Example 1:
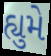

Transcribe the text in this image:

હ્યુમે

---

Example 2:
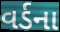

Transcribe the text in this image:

વર્ડના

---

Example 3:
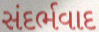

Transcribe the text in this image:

સંદર્ભવાદ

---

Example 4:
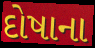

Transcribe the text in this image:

દોષાના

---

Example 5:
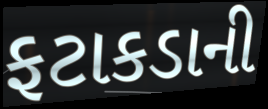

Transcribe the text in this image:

ફટાકડાની